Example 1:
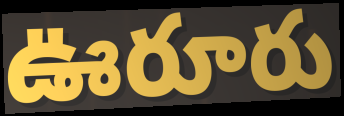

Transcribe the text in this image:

ఊరూరు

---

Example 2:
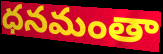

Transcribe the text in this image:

ధనమంతా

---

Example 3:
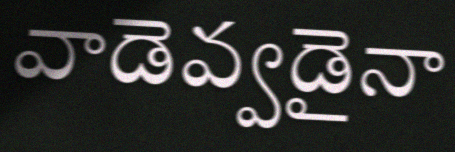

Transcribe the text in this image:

వాడెవ్వడైనా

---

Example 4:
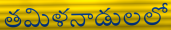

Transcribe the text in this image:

తమిళనాడులలో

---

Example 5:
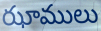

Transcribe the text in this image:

ఝాములు